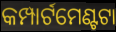
କମ୍ପାର୍ଟମେଣ୍ଟଟା